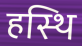
हस्थि